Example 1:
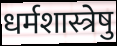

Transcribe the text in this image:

धर्मशास्त्रेषु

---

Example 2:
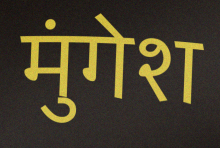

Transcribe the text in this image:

मुंगेश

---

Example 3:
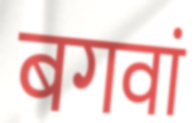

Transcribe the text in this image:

बगवां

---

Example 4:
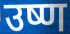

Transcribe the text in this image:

उष्ण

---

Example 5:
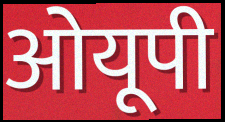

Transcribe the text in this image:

ओयूपी